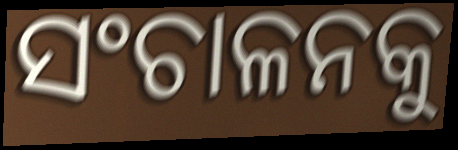
ସଂଚାଳନକୁ